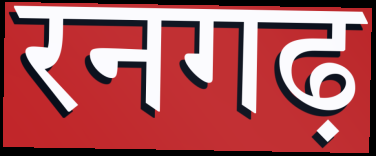
रनगढ़